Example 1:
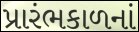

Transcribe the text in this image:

પ્રારંભકાળનાં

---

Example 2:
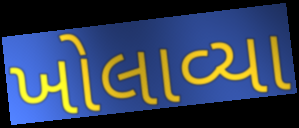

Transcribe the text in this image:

ખોલાવ્યા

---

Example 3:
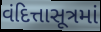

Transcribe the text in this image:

વંદિત્તાસૂત્રમાં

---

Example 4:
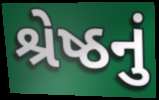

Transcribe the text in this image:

શ્રેષ્ઠનું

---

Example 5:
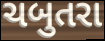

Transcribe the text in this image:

ચબુતરા